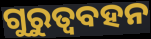
ଗୁରୁତ୍ୱବହନ